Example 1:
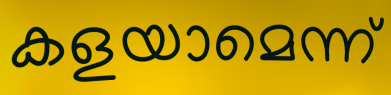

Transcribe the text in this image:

കളയാമെന്ന്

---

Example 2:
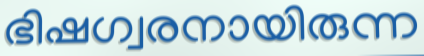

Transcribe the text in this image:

ഭിഷഗ്വരനായിരുന്ന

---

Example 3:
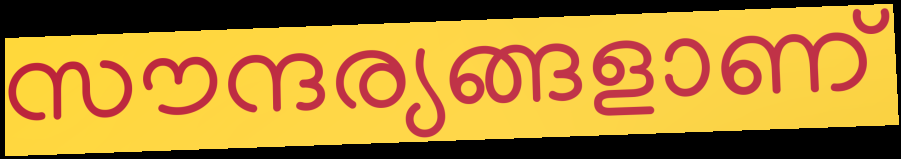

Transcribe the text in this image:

സൗന്ദര്യങ്ങളാണ്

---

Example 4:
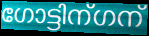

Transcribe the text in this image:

ഗോട്ടിന്ഗന്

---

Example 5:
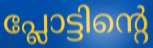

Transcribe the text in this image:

പ്ലോട്ടിന്റെ